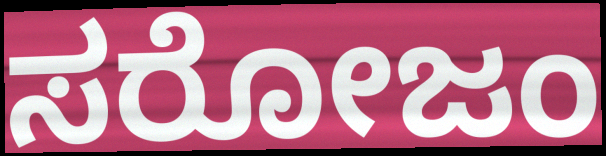
ಸರೋಜಂ